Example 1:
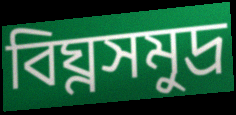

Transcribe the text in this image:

বিঘ্নসমুদ্র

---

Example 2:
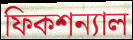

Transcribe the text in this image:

ফিকশন্যাল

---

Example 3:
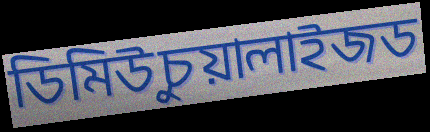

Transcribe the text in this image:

ডিমিউচুয়ালাইজড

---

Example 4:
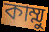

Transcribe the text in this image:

কাম্মু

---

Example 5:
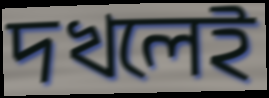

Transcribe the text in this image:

দখলেই